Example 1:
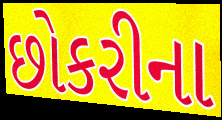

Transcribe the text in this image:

છોકરીના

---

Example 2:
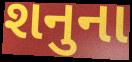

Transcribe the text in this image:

શનુના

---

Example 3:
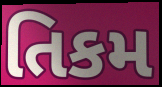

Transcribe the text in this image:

તિકમ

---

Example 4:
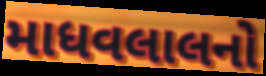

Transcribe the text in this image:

માધવલાલનો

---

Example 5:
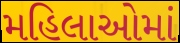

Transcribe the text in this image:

મહિલાઓમાં